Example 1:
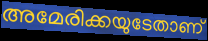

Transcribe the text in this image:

അമേരിക്കയുടേതാണ്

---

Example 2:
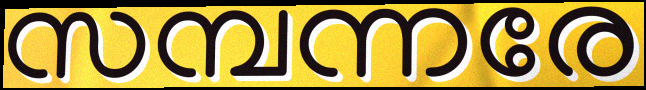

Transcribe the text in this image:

സമ്പന്നരേ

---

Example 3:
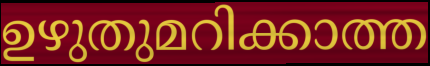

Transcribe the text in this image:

ഉഴുതുമറിക്കാത്ത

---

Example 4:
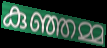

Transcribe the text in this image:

കുഞ്ഞമ്മ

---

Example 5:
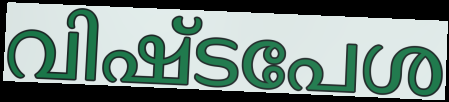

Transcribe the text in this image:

വിഷ്ടപേശ